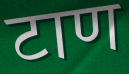
टाण